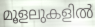
മൂളലുകളിൽ